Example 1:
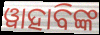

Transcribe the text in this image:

ୱାହାବିଙ୍କ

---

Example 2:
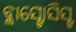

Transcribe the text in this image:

ବ୍ଲାସ୍ଟୋସିସ୍ଟ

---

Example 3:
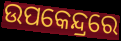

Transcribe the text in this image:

ଉପକେନ୍ଦ୍ରରେ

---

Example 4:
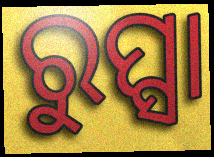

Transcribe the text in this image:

ରୁପ୍ସା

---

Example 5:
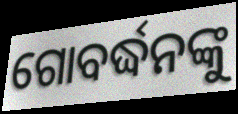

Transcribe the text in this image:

ଗୋବର୍ଦ୍ଧନଙ୍କୁ